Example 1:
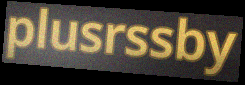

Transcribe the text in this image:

plusrssby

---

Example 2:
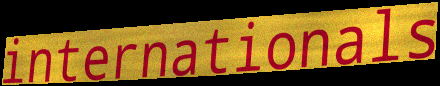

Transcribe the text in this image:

internationals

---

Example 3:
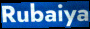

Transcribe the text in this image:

Rubaiya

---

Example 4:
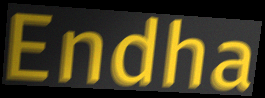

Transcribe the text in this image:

Endha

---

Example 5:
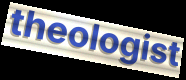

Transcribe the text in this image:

theologist